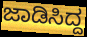
ಜಾಡಿಸಿದ್ದ